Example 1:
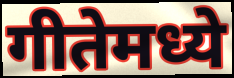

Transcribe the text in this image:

गीतेमध्ये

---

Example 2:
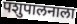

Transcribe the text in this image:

पशुपालनाला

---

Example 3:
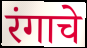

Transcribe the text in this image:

रंगाचे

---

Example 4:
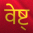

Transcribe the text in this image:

वेष्ट्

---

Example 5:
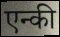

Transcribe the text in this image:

एन्की